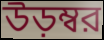
উড়ম্বর